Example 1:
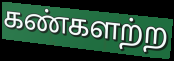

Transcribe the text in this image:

கண்களற்ற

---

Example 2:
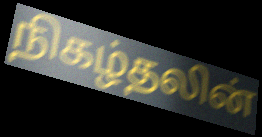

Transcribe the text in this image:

நிகழ்தலின்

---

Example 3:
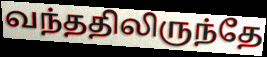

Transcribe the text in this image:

வந்ததிலிருந்தே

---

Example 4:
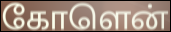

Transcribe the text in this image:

கோளென்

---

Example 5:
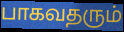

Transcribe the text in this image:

பாகவதரும்